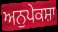
ਅਨੁਪੇਕਸ਼ਾ